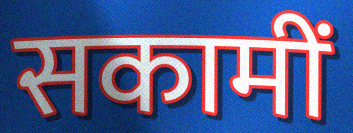
सकामीं